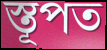
স্তূপত